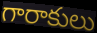
గారాకులు